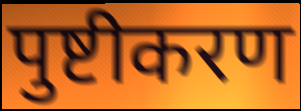
पुष्टीकरण